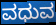
ವಧುವ